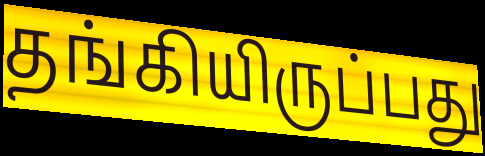
தங்கியிருப்பது